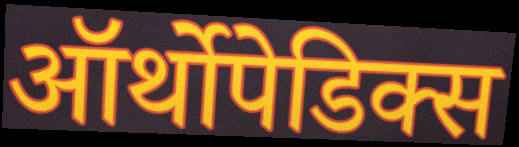
ऑर्थोपेडिक्स